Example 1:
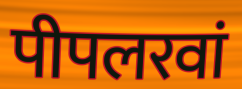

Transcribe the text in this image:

पीपलरवां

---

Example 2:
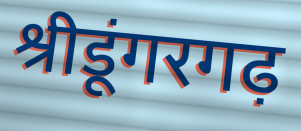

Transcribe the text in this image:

श्रीडूंगरगढ़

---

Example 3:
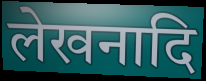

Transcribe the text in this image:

लेखनादि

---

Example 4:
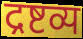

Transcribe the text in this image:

द्रष्टव्य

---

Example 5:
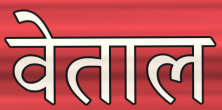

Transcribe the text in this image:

वेताल